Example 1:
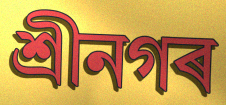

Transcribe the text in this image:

শ্ৰীনগৰ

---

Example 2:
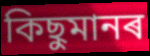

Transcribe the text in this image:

কিছুমানৰ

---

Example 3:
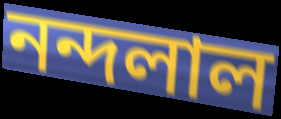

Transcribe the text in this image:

নন্দলাল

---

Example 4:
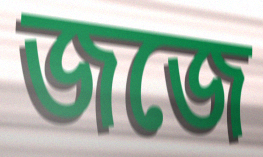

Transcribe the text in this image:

জজে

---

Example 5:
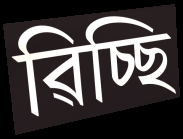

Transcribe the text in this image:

ৱিচ্ছি